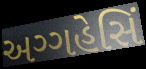
અગ્ગહેસિં